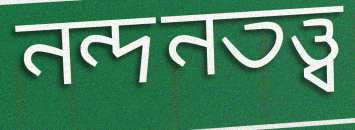
নন্দনতত্ত্ব